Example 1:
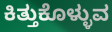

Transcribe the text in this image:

ಕಿತ್ತುಕೊಳ್ಳುವ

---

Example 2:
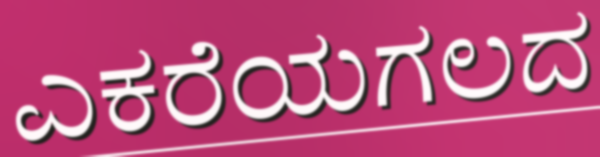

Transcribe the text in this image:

ಎಕರೆಯಗಲದ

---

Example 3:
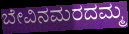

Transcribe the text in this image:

ಬೇವಿನಮರದಮ್ಮ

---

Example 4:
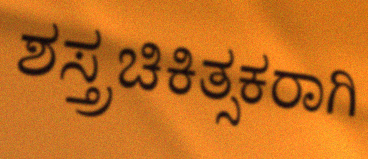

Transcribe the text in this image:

ಶಸ್ತ್ರಚಿಕಿತ್ಸಕರಾಗಿ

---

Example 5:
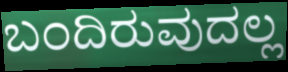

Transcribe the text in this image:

ಬಂದಿರುವುದಲ್ಲ